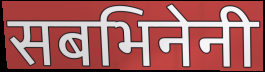
सबभिनेनी